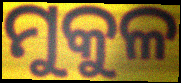
ମୁକୁଳ